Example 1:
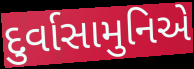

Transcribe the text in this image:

દુર્વાસામુનિએ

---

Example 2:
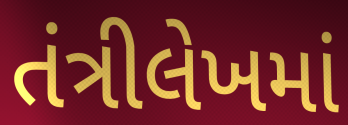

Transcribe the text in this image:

તંત્રીલેખમાં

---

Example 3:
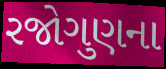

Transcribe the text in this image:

રજોગુણના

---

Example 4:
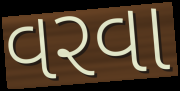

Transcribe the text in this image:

વરવા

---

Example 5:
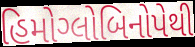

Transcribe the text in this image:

હિમોગ્લોબિનોપેથી